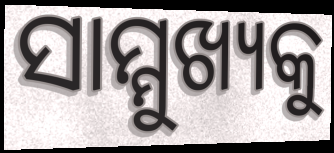
ସାମ୍ମୁଖ୍ୟକୁ